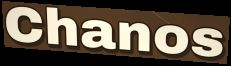
Chanos